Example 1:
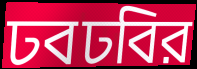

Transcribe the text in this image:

ঢবঢবির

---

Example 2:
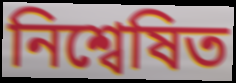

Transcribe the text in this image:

নিশ্বেষিত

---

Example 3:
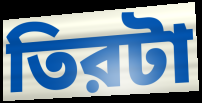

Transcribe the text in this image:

তিরটা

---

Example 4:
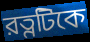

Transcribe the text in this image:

রত্নটিকে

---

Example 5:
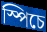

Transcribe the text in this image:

স্পিচে